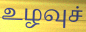
உழவுச்